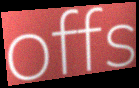
offs